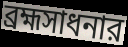
ব্রহ্মসাধনার